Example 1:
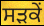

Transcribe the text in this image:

ਸੜਕੇਂ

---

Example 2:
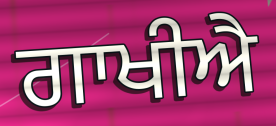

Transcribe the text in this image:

ਗਾਖੀਐ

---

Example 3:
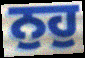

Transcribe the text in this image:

ਨੁਹੁ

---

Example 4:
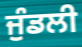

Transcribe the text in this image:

ਜੁੰਡਲੀ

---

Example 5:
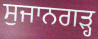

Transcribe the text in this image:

ਸੁਜਾਨਗੜ੍ਹ